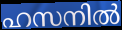
ഹസനിൽ